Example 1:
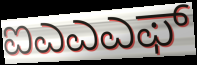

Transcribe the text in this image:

ಐಎಎಎಫ್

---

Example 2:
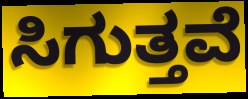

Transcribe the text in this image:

ಸಿಗುತ್ತವೆ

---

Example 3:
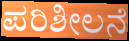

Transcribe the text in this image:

ಪರಿಶೀಲನೆ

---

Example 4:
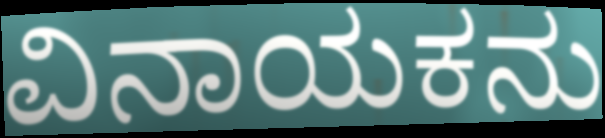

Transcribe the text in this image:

ವಿನಾಯಕನು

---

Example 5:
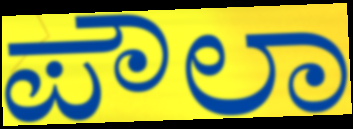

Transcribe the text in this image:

ಪೌಲಾ